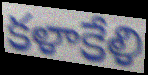
కళాకేళి